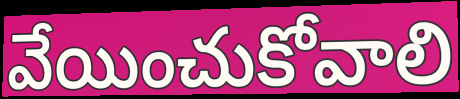
వేయించుకోవాలి